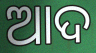
ଆଦ